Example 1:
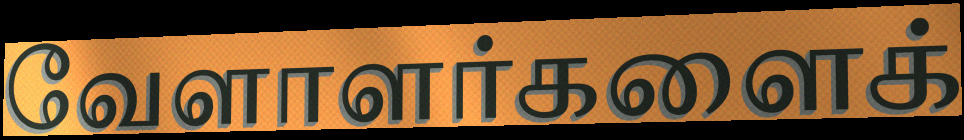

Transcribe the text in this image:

வேளாளர்களைக்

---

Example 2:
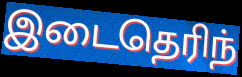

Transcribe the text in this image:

இடைதெரிந்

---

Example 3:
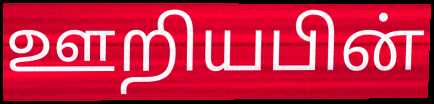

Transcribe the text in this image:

ஊறியபின்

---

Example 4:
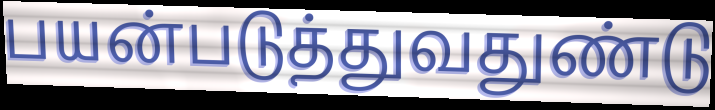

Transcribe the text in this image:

பயன்படுத்துவதுண்டு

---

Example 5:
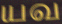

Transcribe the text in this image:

யவ